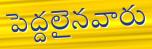
పెద్దలైనవారు